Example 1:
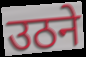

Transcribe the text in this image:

उठने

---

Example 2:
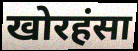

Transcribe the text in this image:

खोरहंसा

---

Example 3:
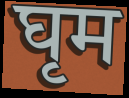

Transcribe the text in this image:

घृम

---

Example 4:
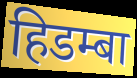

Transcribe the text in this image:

हिडम्बा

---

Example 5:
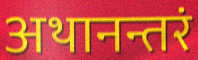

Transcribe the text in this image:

अथानन्तरं